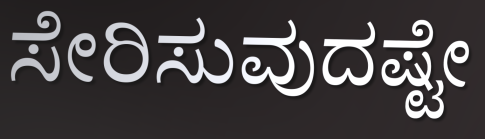
ಸೇರಿಸುವುದಷ್ಟೇ